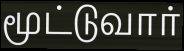
மூட்டுவார்